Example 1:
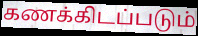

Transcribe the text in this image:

கணக்கிடப்படும்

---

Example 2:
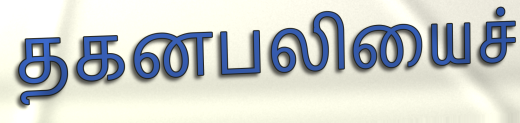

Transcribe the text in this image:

தகனபலியைச்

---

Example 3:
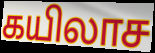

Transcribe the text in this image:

கயிலாச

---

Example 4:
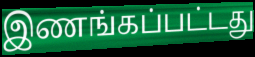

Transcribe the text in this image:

இணங்கப்பட்டது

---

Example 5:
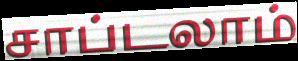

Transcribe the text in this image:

சாப்டலாம்